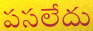
పసలేదు